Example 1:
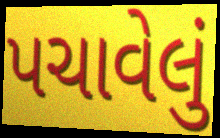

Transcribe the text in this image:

પચાવેલું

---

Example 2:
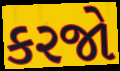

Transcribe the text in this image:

કરજો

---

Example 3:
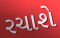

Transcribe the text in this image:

રચાશે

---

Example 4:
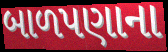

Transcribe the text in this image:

બાળપણાના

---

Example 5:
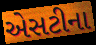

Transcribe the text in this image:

એસટીના